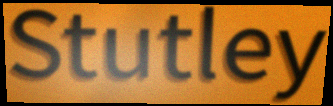
Stutley